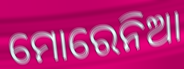
ମୋରେନିଆ